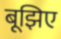
बूझिए